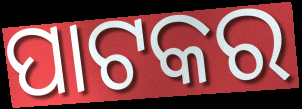
ପାଟକର